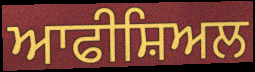
ਆਫੀਸ਼ਿਅਲ